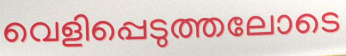
വെളിപ്പെടുത്തലോടെ